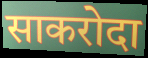
साकरोदा